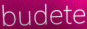
budete